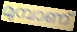
മുമ്പാണ്